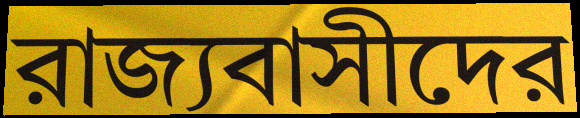
রাজ্যবাসীদের